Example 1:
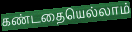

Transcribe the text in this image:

கண்டதையெல்லாம்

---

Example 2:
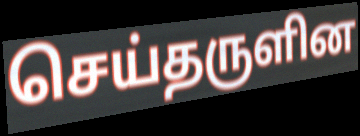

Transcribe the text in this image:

செய்தருளின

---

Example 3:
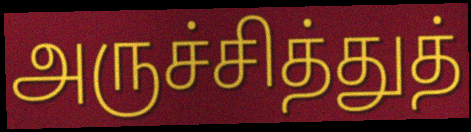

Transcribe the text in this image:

அருச்சித்துத்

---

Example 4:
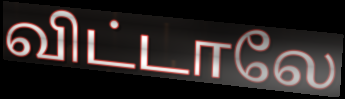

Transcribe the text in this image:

விட்டாலே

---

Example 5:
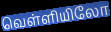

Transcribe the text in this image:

வெள்ளியிலோ